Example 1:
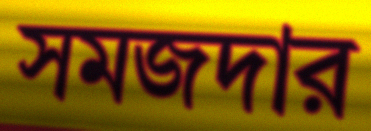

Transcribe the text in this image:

সমজদার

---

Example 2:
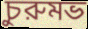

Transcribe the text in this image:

চুরুমভ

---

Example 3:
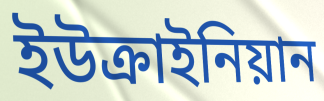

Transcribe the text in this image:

ইউক্রাইনিয়ান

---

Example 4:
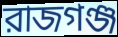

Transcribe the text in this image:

রাজগঞ্জ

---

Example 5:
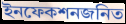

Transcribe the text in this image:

ইনফেকশনজনিত